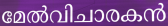
മേൽവിചാരകൻ